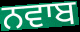
ਨਵਾਬ